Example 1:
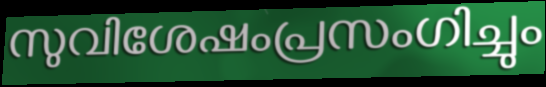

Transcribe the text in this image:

സുവിശേഷംപ്രസംഗിച്ചും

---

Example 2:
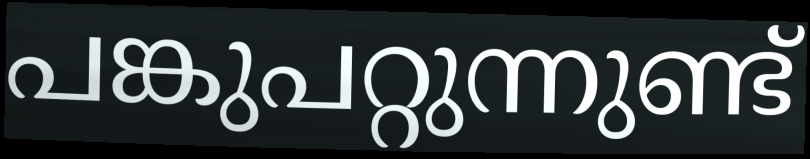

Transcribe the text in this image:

പങ്കുപറ്റുന്നുണ്ട്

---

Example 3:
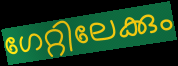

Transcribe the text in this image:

ഗേറ്റിലേക്കും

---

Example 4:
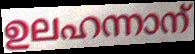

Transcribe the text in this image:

ഉലഹന്നാന്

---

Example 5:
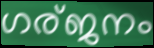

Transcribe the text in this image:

ഗര്ജനം